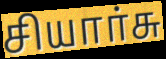
சியார்சு